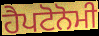
ਹੈਪਟੋਨੋਮੀ